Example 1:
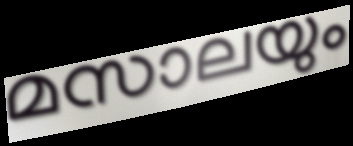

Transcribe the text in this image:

മസാലയും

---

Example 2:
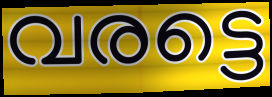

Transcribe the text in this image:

വരട്ടെ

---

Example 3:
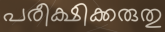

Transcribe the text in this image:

പരീക്ഷിക്കരുതു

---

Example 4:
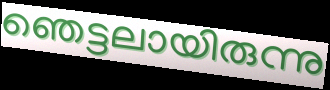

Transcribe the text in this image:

ഞെട്ടലായിരുന്നു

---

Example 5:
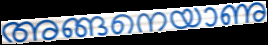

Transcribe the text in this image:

അങ്ങനെയാണു